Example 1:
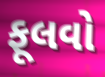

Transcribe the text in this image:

ફૂલવો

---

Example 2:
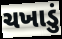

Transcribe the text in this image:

ચખાડું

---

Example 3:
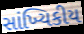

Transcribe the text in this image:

સાંખ્યિકીય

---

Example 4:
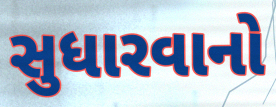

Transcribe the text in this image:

સુધારવાનો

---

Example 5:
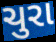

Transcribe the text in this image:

ચુરા